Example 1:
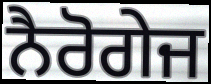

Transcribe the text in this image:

ਨੈਰੋਗੇਜ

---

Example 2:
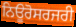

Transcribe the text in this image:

ਨਿਊਰੋਸਰਜਰੀ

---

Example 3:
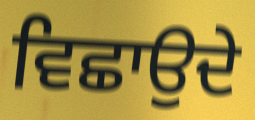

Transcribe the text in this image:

ਵਿਛਾਉਦੇ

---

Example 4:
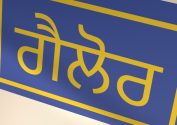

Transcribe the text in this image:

ਗੈਲੋਰ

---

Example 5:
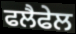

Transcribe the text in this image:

ਫਲੈਫੇਲ